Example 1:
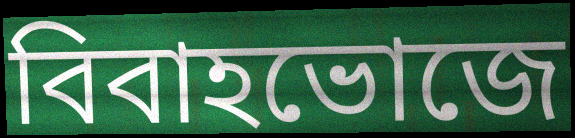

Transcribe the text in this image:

বিবাহভোজে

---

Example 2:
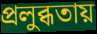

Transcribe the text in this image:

প্রলুব্ধতায়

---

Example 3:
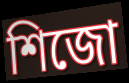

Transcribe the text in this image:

শিজো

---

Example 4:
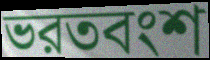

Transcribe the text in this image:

ভরতবংশ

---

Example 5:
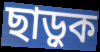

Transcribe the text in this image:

ছাড়ুক